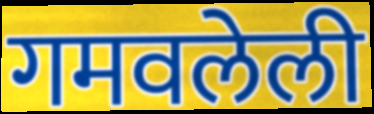
गमवलेली